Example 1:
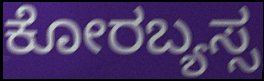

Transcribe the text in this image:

ಕೋರಬ್ಯಸ್ಸ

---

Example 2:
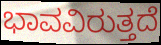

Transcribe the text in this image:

ಭಾವವಿರುತ್ತದೆ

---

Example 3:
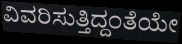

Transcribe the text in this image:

ವಿವರಿಸುತ್ತಿದ್ದಂತೆಯೇ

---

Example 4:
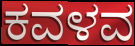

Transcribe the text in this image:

ಕವಳವ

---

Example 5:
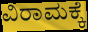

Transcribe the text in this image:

ವಿರಾಮಕ್ಕೆ